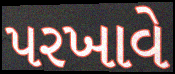
પરખાવે